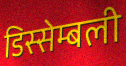
डिस्सेम्बली